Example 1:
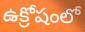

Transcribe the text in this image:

ఉక్రోషంలో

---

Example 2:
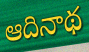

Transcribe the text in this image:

ఆదినాథ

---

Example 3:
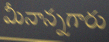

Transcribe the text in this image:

మీనాన్నగారు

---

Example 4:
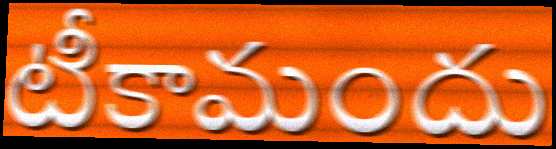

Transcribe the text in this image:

టీకామందు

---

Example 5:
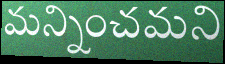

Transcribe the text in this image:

మన్నించమని